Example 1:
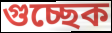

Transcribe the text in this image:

গুচ্ছেক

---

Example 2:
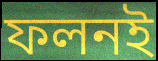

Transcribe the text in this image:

ফলনই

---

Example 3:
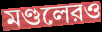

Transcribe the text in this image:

মণ্ডলেরও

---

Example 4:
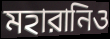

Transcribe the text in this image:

মহারানিও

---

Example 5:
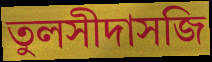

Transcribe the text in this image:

তুলসীদাসজি